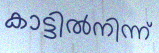
കാട്ടിൽനിന്ന്